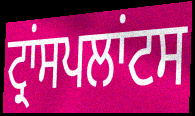
ਟ੍ਰਾਂਸਪਲਾਂਟਸ